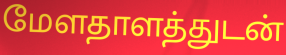
மேளதாளத்துடன்